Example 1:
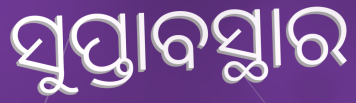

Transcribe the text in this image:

ସୁପ୍ତାବସ୍ଥାର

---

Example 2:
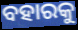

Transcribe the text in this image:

ବହାରକୁ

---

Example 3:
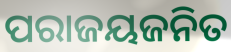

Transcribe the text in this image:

ପରାଜୟଜନିତ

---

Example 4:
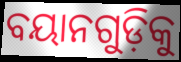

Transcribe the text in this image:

ବୟାନଗୁଡ଼ିକୁ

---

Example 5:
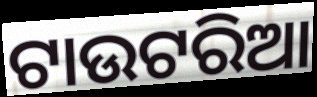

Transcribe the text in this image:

ଟାଉଟରିଆ